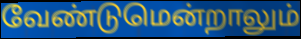
வேண்டுமென்றாலும்